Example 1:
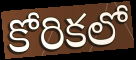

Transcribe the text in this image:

కోరికలో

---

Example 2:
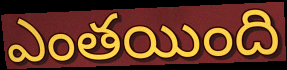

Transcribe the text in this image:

ఎంతయింది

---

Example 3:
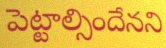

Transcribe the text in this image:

పెట్టాల్సిందేనని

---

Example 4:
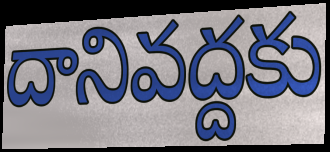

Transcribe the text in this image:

దానివద్దకు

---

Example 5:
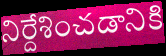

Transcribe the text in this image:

నిర్దేశించడానికి